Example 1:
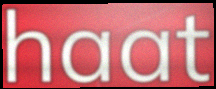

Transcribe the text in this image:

haat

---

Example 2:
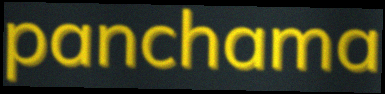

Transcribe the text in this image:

panchama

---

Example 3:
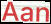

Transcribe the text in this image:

Aan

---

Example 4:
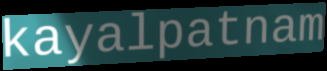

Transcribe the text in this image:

kayalpatnam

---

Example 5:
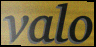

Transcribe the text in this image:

valo